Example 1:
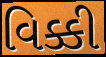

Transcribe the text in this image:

વિક્કી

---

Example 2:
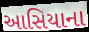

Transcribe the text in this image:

આસિયાના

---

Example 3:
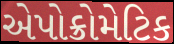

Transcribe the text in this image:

એપોક્રોમેટિક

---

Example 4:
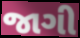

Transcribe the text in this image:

જાગી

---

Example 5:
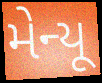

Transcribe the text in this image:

મેન્યૂ